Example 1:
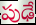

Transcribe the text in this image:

పుఢే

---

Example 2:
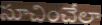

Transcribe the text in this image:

సూచించేలా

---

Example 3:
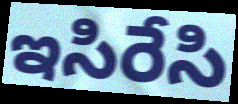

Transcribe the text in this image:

ఇసిరేసి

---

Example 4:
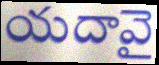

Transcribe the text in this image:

యదావై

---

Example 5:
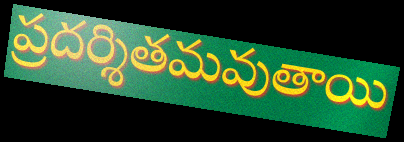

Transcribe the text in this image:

ప్రదర్శితమవుతాయి